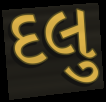
દલુ